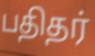
பதிதர்